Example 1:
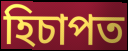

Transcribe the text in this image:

হিচাপত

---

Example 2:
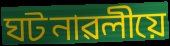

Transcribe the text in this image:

ঘটনাৱলীয়ে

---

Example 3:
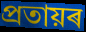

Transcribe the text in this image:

প্ৰতায়ৰ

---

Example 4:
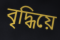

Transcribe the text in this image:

বৃদ্ধিয়ে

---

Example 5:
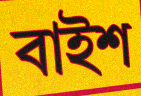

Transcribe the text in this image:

বাইশ